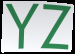
YZ